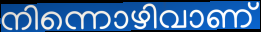
നിന്നൊഴിവാണ്